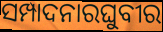
ସମ୍ପାଦନାରଘୁବୀର